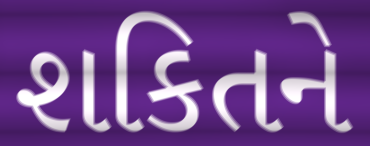
શકિતને